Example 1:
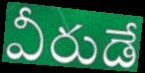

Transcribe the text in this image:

వీరుడే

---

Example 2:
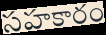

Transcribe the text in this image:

సహకారం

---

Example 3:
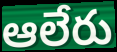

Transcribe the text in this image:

ఆలేరు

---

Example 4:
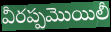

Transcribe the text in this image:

వీరప్పమొయిలీ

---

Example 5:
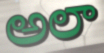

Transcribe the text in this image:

అలా